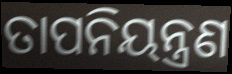
ତାପନିୟନ୍ତ୍ରଣ